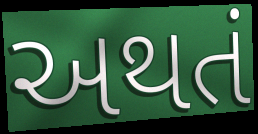
અથતં